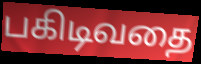
பகிடிவதை